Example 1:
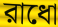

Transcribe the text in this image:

রাধো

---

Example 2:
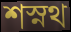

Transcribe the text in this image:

শস্নথ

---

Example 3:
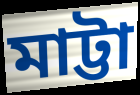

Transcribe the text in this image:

মাট্টা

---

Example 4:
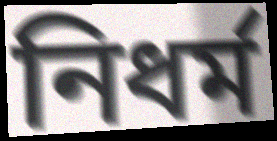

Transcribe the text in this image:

নিধর্ম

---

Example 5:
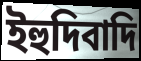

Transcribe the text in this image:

ইহুদিবাদি